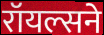
रॉयल्सने